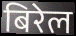
बिरेल